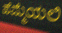
ಹೆಮ್ಮೆಯಲಿ